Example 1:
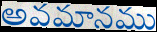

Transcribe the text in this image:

అవమానము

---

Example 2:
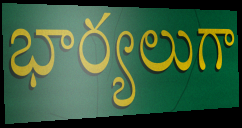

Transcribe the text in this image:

భార్యలుగా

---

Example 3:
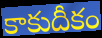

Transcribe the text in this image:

కాకుదీకం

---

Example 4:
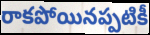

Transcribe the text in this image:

రాకపోయినప్పటికీ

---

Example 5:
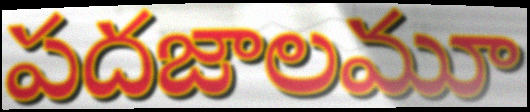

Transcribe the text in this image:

పదజాలమూ